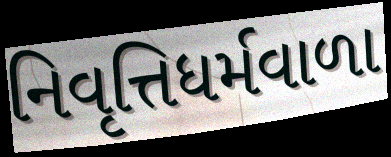
નિવૃત્તિધર્મવાળા